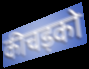
कीचड़को